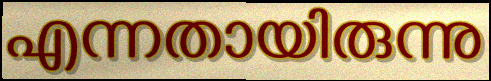
എന്നതായിരുന്നു